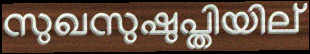
സുഖസുഷുപ്തിയില്